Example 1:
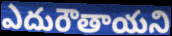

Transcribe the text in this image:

ఎదురౌతాయని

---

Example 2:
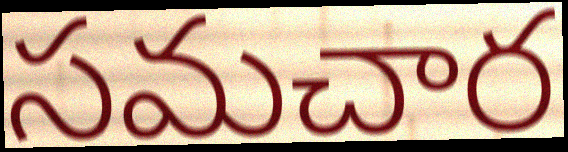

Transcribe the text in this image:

సమచార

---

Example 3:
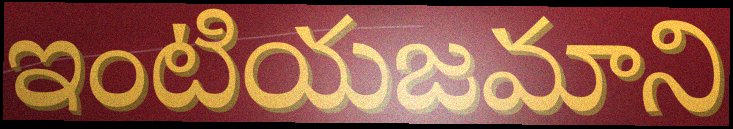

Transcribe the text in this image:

ఇంటియజమాని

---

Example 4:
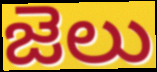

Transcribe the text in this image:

జెలు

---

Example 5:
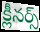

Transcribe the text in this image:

క్లీనర్స్